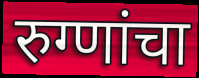
रुग्णांचा